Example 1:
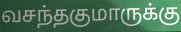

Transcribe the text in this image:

வசந்தகுமாருக்கு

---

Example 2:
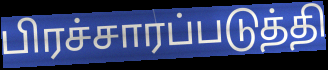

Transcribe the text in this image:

பிரச்சாரப்படுத்தி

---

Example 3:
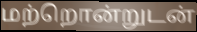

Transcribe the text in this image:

மற்றொன்றுடன்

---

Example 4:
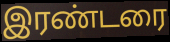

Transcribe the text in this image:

இரண்டரை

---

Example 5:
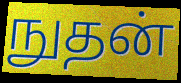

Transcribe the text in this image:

நுதன்